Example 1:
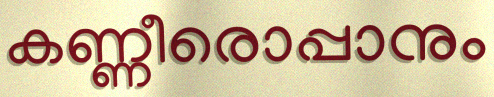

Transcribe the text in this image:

കണ്ണീരൊപ്പാനും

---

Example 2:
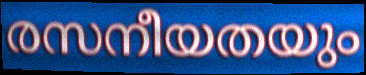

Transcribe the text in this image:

രസനീയതയും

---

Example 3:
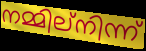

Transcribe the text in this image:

നമ്മില്നിന്ന്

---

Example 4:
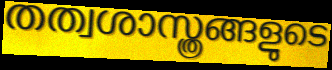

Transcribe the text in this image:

തത്വശാസ്ത്രങ്ങളുടെ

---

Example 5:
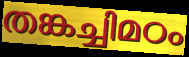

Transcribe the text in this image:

തങ്കച്ചിമഠം